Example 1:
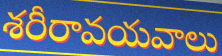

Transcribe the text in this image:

శరీరావయవాలు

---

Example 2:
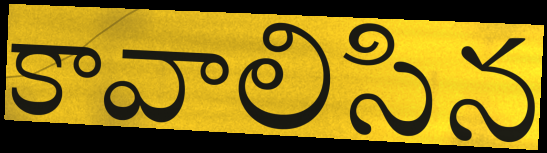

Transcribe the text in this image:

కావాలిసిన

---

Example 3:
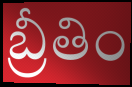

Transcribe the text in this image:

బ్రీతిం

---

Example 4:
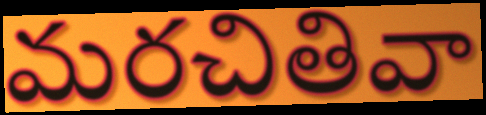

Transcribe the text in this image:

మరచితివా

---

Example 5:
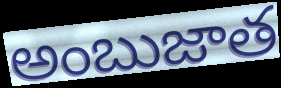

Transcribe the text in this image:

అంబుజాత